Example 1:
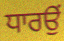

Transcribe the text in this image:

ਧਾਰਉਂ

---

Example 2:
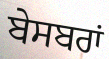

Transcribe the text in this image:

ਬੇਸਬਰਾਂ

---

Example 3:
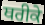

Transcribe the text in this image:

ਥਰੀਕੇ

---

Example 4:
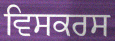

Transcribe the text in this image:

ਵਿਸਕਰਸ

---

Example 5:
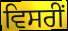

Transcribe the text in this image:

ਵਿਸਰੀਂ